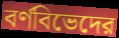
বর্ণবিভেদের